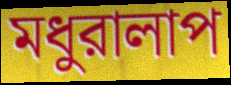
মধুরালাপ